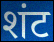
शंट